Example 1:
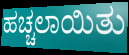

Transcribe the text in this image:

ಹಚ್ಚಲಾಯಿತು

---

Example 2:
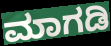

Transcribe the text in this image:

ಮಾಗಡಿ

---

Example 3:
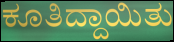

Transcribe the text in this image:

ಕೂತಿದ್ದಾಯಿತು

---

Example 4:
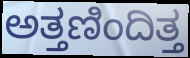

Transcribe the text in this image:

ಅತ್ತಣಿಂದಿತ್ತ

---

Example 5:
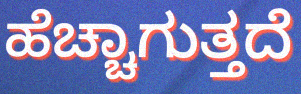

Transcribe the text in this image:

ಹೆಚ್ಚಾಗುತ್ತದೆ